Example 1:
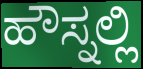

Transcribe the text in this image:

ಹೌಸ್ನಲ್ಲಿ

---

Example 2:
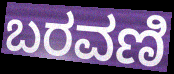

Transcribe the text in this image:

ಬರವಣಿ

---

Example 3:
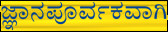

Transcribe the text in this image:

ಜ್ಞಾನಪೂರ್ವಕವಾಗಿ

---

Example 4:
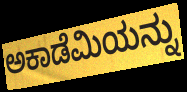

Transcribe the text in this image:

ಅಕಾಡೆಮಿಯನ್ನು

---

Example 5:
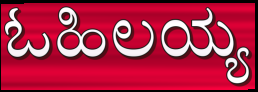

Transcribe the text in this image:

ಓಹಿಲಯ್ಯ